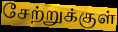
சேற்றுக்குள்